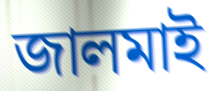
জালমাই